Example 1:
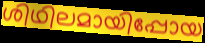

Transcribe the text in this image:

ശിഥിലമായിപ്പോയ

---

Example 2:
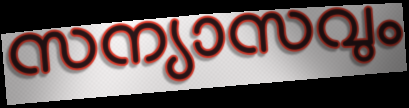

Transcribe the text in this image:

സന്യാസവും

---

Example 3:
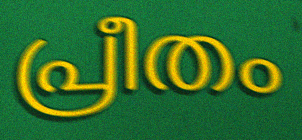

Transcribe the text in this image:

പ്രീതം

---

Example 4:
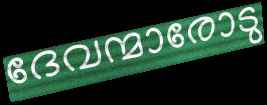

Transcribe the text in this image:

ദേവന്മാരോടു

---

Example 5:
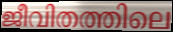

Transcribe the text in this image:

ജീവിതത്തിലെ